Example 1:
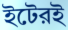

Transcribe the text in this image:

ইটেরই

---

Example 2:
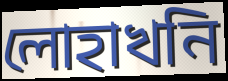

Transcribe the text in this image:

লোহাখনি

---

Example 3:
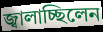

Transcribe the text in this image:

জ্বালাচ্ছিলেন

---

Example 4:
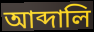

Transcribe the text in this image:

আব্দালি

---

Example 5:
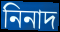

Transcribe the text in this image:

নিনাদ